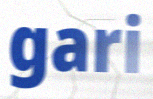
gari